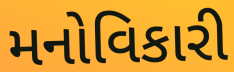
મનોવિકારી